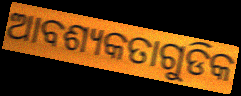
ଆବଶ୍ୟକତାଗୁଡିକ